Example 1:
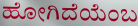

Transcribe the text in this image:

ಹೋಗಿದೆಯೆಂಬ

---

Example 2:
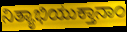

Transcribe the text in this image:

ನಿತ್ಯಾಭಿಯುಕ್ತಾನಾಂ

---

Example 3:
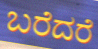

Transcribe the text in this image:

ಬರೆದರೆ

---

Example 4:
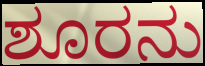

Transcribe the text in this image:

ಶೂರನು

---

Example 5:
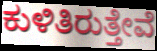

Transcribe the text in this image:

ಕುಳಿತಿರುತ್ತೇವೆ